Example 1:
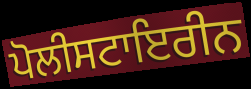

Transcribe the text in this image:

ਪੋਲੀਸਟਾਇਰੀਨ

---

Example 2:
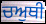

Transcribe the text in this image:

ਚਅੁਥੀ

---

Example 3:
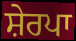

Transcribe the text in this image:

ਸ਼ੇਰਪਾ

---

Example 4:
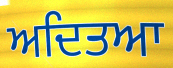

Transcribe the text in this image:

ਅਦਿਤਆ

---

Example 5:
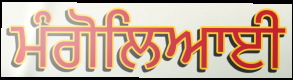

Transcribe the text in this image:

ਮੰਗੋਲਿਆਈ